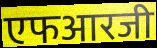
एफआरजी